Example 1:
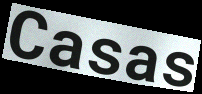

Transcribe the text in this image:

Casas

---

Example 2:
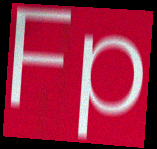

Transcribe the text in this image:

Fp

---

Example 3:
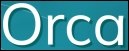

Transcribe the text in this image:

Orca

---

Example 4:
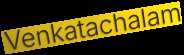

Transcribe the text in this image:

Venkatachalam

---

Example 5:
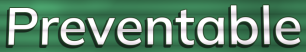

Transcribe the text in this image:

Preventable